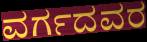
ವರ್ಗದವರ